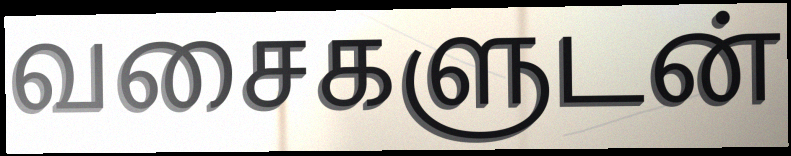
வசைகளுடன்